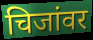
चिजांवर